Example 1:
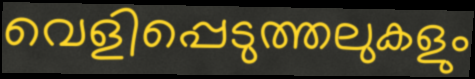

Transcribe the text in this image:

വെളിപ്പെടുത്തലുകളും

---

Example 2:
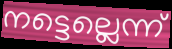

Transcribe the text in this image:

നട്ടെല്ലെന്ന്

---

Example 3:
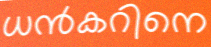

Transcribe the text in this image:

ധൻകറിനെ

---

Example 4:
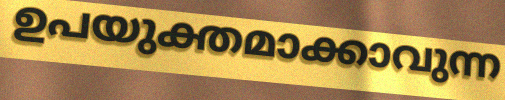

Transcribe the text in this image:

ഉപയുക്തമാക്കാവുന്ന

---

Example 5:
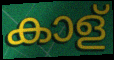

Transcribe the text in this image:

കാള്